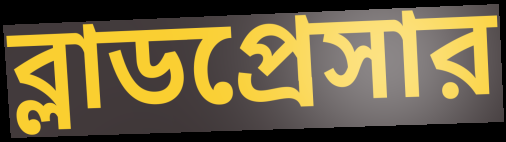
ব্লাডপ্রেসার